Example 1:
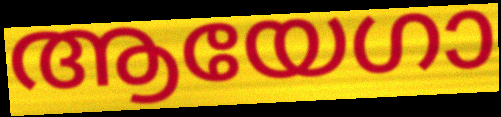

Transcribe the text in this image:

ആയേഗാ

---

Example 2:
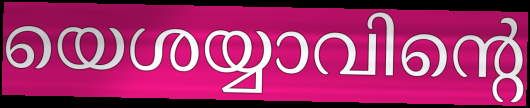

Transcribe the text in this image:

യെശയ്യാവിന്റെ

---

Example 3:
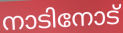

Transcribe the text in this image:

നാടിനോട്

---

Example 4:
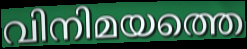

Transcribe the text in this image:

വിനിമയത്തെ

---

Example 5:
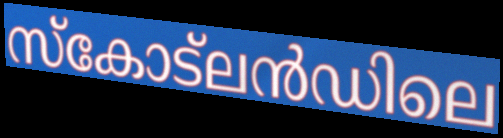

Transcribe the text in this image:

സ്കോട്ലൻഡിലെ